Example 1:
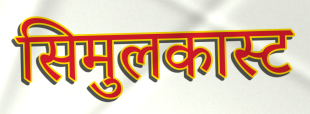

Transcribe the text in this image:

सिमुलकास्ट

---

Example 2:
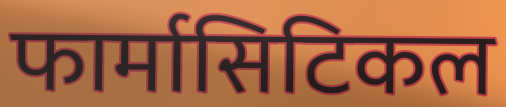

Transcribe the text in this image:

फार्मासिटिकल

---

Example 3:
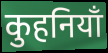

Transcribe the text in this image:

कुहनियाँ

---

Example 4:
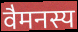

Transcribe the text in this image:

वैमनस्य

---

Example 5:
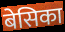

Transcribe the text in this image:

बेसिका